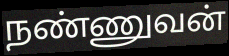
நண்ணுவன்